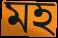
মহ